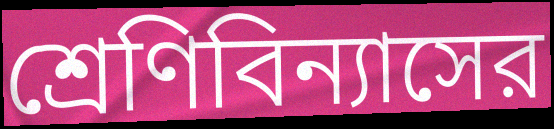
শ্রেণিবিন্যাসের